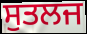
ਸੁਤਲਜ